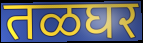
तळघर